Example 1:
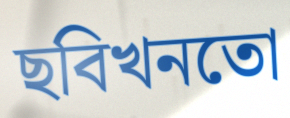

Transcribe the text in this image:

ছবিখনতো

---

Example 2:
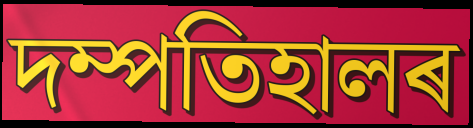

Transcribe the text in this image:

দম্পতিহালৰ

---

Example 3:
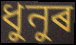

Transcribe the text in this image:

ধুনুৰ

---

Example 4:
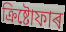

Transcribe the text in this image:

ক্ৰিষ্টোফাৰ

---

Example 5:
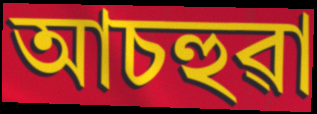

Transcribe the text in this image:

আচহুৱা